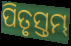
ପିତୃସ୍ତମ୍ଭ